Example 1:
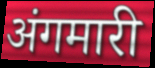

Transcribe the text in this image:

अंगमारी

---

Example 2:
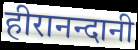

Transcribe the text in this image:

हीरानन्दानी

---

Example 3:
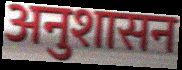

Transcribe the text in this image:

अनुशासन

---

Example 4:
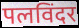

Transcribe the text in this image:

पलविंदर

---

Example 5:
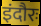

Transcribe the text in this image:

इंदौरः